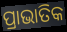
ପ୍ରାଭାତିକ